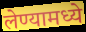
लेण्यामध्ये